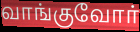
வாங்குவோர்